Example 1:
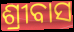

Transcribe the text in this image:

ଶ୍ରୀବାସ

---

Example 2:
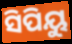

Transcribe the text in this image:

ସିପିୟୁ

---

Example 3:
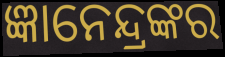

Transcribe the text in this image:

ଜ୍ଞାନେନ୍ଦ୍ରଙ୍କର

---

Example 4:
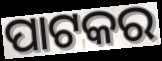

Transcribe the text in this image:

ପାଟକର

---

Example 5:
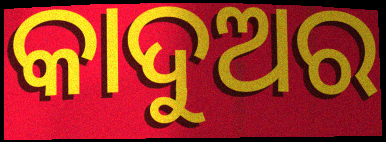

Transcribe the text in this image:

କାଦୁଅର